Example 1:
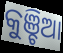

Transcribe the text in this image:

କୁଞ୍ଚିଆ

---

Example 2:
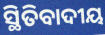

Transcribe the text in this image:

ସ୍ଥିତିବାଦୀୟ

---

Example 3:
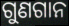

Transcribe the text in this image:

ଗୁଣଗାନ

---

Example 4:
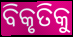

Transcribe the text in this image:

ବିକୃତିକୁ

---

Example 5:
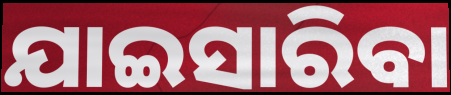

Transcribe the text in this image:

ଯାଇସାରିବା